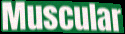
Muscular